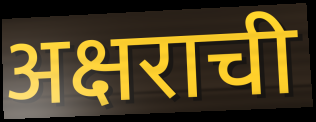
अक्षराची